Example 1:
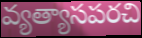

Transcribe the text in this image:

వ్యత్యాసపరచి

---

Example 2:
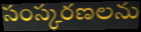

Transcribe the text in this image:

సంస్కరణలను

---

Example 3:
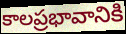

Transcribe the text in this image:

కాలప్రభావానికి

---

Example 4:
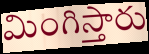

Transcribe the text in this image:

మింగిస్తారు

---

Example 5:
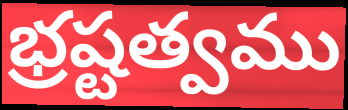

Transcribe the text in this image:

భ్రష్టత్వము